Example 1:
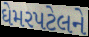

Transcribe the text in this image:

ઘેમરપટેલને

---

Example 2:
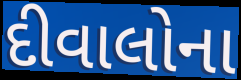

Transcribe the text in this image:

દીવાલોના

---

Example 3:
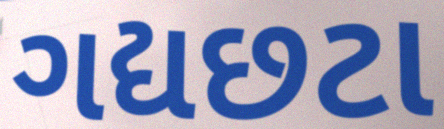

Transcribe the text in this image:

ગદ્યછટા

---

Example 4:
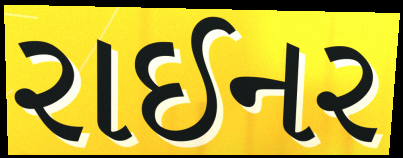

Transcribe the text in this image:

રાઈનર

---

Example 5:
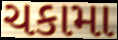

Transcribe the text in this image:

ચકામા